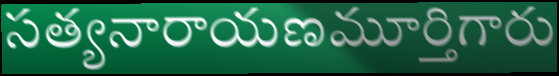
సత్యనారాయణమూర్తిగారు